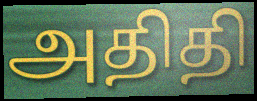
அதிதி